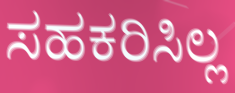
ಸಹಕರಿಸಿಲ್ಲ